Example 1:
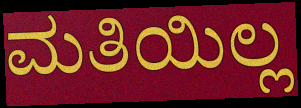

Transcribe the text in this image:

ಮತಿಯಿಲ್ಲ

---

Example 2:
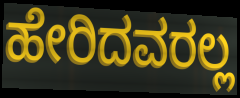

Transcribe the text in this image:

ಹೇರಿದವರಲ್ಲ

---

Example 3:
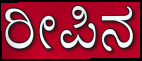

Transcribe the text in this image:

ರೀಪಿನ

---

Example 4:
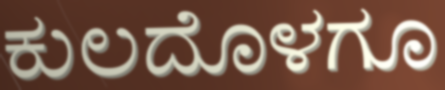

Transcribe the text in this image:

ಕುಲದೊಳಗೂ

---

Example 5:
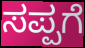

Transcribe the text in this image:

ಸಪ್ಪಗೆ